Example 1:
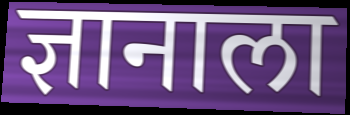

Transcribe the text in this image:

ज्ञानाला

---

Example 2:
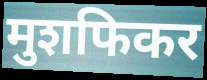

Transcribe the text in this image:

मुशफिकर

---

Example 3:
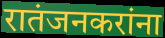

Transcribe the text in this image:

रातंजनकरांना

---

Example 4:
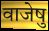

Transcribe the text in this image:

वाजेषु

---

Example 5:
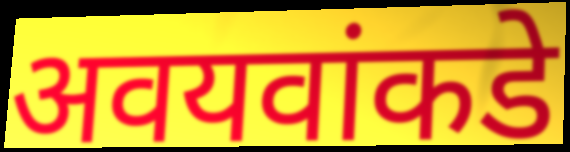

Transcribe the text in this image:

अवयवांकडे